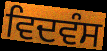
ਵਿਦਵੰਸ